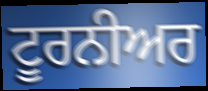
ਟੂਰਨੀਅਰ